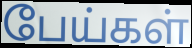
பேய்கள்